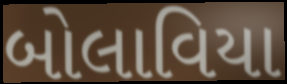
બોલાવિયા